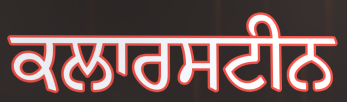
ਕਲਾਰਸਟੀਨ